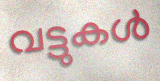
വട്ടുകൾ